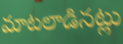
మాటలాడినట్లు